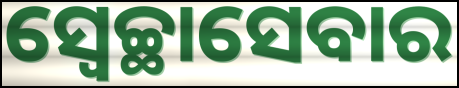
ସ୍ୱେଚ୍ଛାସେବାର